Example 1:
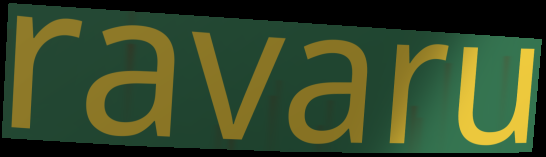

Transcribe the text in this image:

ravaru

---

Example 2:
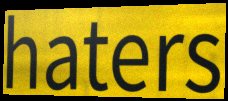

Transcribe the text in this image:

haters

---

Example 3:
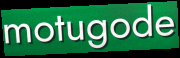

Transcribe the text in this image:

motugode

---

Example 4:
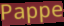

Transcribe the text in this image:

Pappe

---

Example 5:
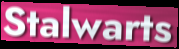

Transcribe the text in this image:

Stalwarts